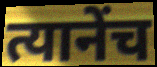
त्यानेंच